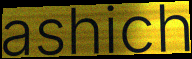
ashich